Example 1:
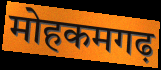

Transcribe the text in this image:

मोहकमगढ़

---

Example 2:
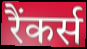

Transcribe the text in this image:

रैंकर्स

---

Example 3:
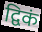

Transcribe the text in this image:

द्विकं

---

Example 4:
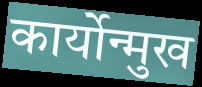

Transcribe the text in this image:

कार्योन्मुख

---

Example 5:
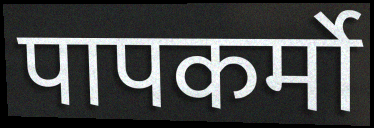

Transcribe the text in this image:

पापकर्मो